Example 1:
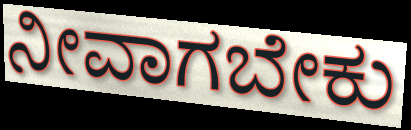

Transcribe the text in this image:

ನೀವಾಗಬೇಕು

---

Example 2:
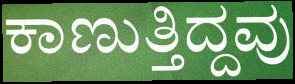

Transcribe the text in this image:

ಕಾಣುತ್ತಿದ್ದವು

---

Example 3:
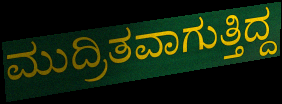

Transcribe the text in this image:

ಮುದ್ರಿತವಾಗುತ್ತಿದ್ದ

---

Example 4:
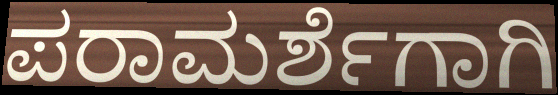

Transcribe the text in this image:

ಪರಾಮರ್ಶೆಗಾಗಿ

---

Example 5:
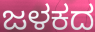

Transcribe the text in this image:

ಜಳಕದ